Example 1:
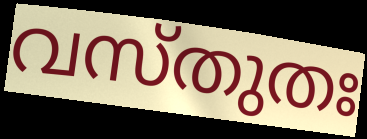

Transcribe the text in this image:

വസ്തുതഃ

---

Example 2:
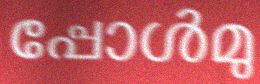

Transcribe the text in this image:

പ്പോൾമു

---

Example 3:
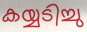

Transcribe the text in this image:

കയ്യടിച്ചു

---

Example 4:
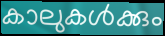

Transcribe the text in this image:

കാലുകൾക്കും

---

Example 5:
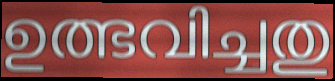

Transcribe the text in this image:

ഉത്ഭവിച്ചതു